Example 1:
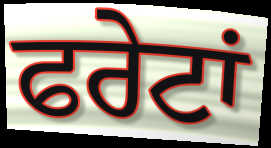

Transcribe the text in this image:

ਫਰੇਟਾਂ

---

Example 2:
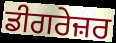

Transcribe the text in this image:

ਡੀਗਰੇਜ਼ਰ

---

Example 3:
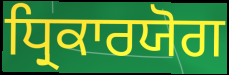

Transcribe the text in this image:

ਧ੍ਰਿਕਾਰਯੋਗ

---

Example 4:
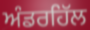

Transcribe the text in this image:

ਅੰਡਰਹਿੱਲ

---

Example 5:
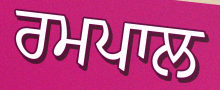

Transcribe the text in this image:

ਰਮਪਾਲ